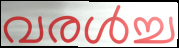
വരൾച്ച